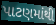
પાટણમાંથી